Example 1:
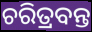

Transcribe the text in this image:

ଚରିତ୍ରବନ୍ତ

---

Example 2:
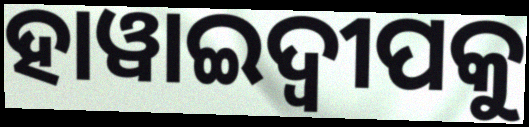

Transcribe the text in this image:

ହାୱାଇଦ୍ଵୀପକୁ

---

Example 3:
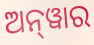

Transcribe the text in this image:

ଅନ୍‌ୱାର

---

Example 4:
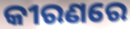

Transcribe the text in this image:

କୀରଣରେ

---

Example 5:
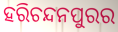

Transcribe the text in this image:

ହରିଚନ୍ଦନପୁରର